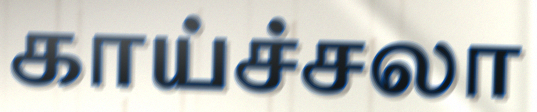
காய்ச்சலா